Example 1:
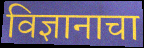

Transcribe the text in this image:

विज्ञानाचा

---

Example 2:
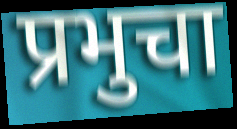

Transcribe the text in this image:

प्रभुचा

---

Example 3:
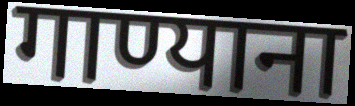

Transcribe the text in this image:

गाण्याना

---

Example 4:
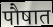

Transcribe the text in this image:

पौषात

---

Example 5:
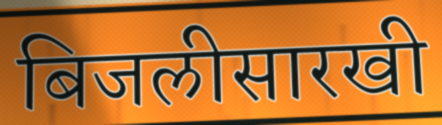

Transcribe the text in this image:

बिजलीसारखी